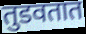
तुडवतात